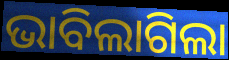
ଭାବିଲାଗିଲା